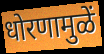
धोरणामुळें